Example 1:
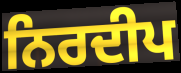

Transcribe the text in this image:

ਨਿਰਦੀਪ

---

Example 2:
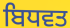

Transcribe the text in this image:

ਬਿਧਵਤ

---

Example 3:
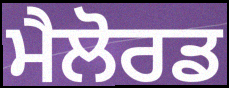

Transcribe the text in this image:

ਮੈਲੋਰਡ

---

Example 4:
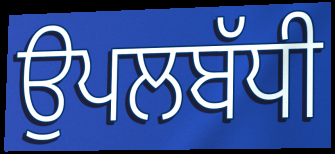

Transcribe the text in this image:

ਉਪਲਬੱਧੀ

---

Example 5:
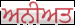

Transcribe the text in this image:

ਅਨੀਅਤ